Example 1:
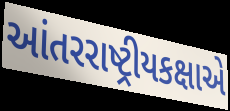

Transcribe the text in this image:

આંતરરાષ્ટ્રીયકક્ષાએ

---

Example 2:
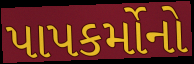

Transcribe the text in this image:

પાપકર્મોનો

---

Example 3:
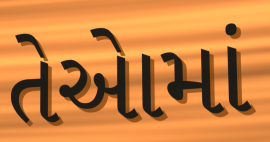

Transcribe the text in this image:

તેએામાં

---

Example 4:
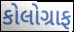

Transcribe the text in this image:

કોલોગ્રાફ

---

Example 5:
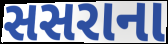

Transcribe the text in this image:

સસરાના